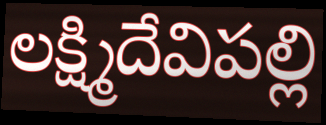
లక్ష్మిదేవిపల్లి